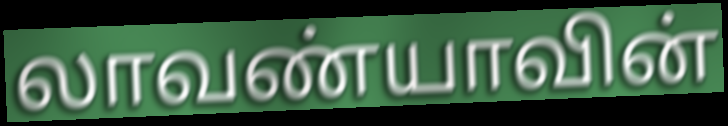
லாவண்யாவின்